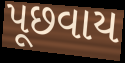
પૂછવાય